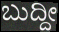
ಬುದ್ದೀ